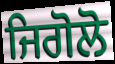
ਜਿਗੋਲੋ